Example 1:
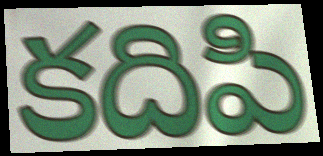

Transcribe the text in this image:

కదిపి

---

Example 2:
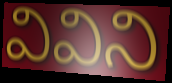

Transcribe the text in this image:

వివిని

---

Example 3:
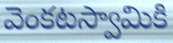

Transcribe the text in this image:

వెంకటస్వామికి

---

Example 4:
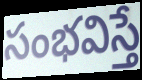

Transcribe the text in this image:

సంభవిస్తే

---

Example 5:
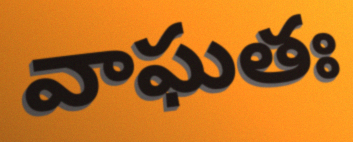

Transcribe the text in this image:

వాఘతః